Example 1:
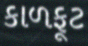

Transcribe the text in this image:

કાળફૂટ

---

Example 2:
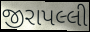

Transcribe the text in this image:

જીરાપલ્લી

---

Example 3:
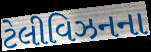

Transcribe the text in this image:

ટેલીવિઝનના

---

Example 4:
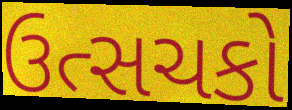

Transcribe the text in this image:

ઉત્સચકો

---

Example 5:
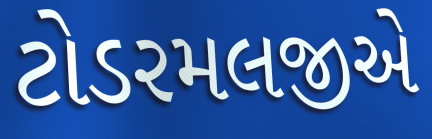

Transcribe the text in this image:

ટોડરમલજીએ